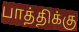
பாத்திக்கு